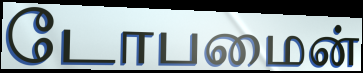
டோபமைன்